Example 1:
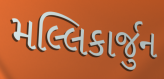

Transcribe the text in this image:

મલ્લિકાર્જુન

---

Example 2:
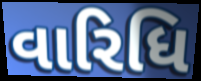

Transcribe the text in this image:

વારિધિ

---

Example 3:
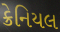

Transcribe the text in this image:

ક્રેનિયલ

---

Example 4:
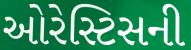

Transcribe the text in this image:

ઓરેસ્ટિસની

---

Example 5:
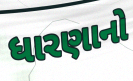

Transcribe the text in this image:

ધારણાનો